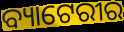
ବ୍ୟାଟେରୀର